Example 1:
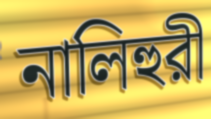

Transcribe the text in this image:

নালিহুরী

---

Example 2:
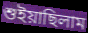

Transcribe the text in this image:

শুইয়াছিলাম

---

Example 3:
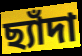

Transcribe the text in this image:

ছ্যাঁদা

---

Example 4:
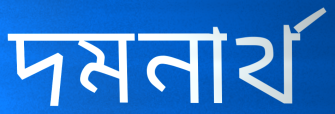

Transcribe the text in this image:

দমনার্থ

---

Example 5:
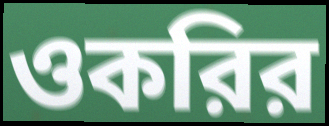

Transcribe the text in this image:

ওকরির